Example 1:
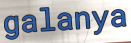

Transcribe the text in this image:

galanya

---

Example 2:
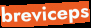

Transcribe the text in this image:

breviceps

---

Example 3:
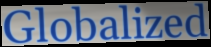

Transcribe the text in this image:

Globalized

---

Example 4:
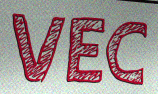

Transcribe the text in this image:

VEC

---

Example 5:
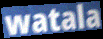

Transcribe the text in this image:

watala